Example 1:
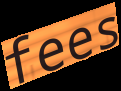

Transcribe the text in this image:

fees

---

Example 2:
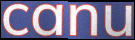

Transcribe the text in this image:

canu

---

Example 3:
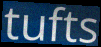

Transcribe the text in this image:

tufts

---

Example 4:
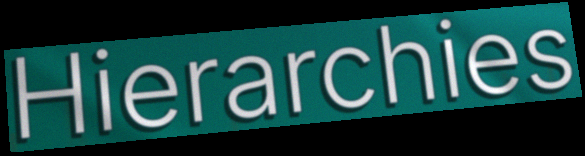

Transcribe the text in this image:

Hierarchies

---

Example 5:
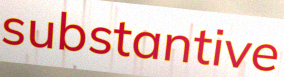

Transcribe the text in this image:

substantive